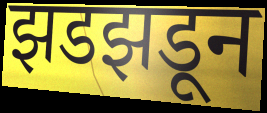
झडझडून